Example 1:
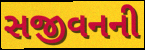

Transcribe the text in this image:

સજીવનની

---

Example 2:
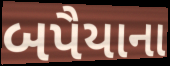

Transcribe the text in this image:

બપૈયાના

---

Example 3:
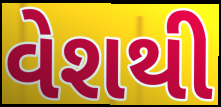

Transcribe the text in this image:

વેશથી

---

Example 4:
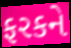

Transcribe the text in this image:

ફરકને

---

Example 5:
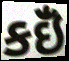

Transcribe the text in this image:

કઇઁં